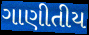
ગાણીતીય